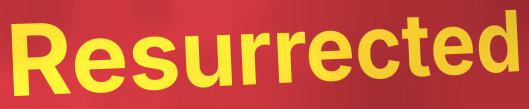
Resurrected